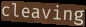
cleaving